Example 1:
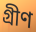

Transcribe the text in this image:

গ্ৰীণ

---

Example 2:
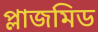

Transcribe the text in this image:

প্লাজমিড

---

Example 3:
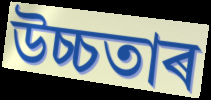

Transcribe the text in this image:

উচ্চতাৰ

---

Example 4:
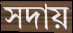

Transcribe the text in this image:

সদায়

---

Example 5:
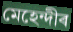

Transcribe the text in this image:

মেহেন্দীৰ